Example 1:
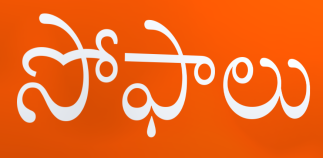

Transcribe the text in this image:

సోఫాలు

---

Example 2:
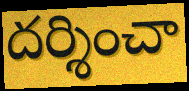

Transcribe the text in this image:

దర్శించా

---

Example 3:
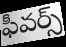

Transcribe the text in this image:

ఫీవర్స్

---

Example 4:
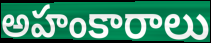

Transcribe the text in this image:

అహంకారాలు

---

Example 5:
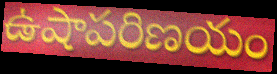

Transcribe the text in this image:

ఉషాపరిణయం